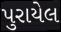
પુરાયેલ